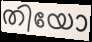
തിയോ